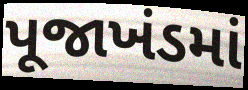
પૂજાખંડમાં